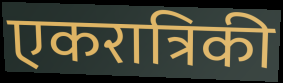
एकरात्रिकी